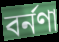
বর্নণা